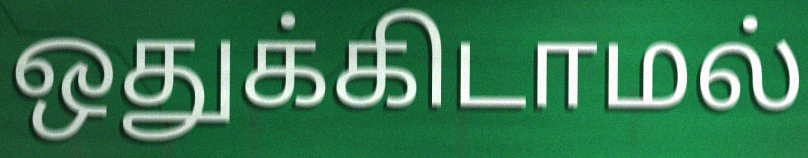
ஒதுக்கிடாமல்